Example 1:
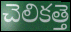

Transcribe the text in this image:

చెలికత్తె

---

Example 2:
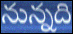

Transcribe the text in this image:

నున్నది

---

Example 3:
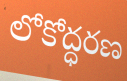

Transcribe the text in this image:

లోకోద్ధరణ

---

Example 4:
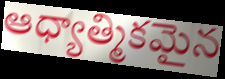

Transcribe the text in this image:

ఆధ్యాత్మికమైన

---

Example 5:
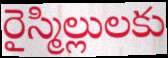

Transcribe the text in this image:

రైస్మిల్లులకు